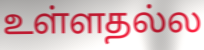
உள்ளதல்ல